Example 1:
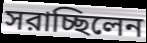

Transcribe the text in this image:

সরাচ্ছিলেন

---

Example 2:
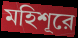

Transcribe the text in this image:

মহিশূরে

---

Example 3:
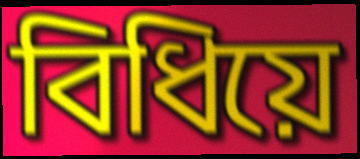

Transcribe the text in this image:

বিধিয়ে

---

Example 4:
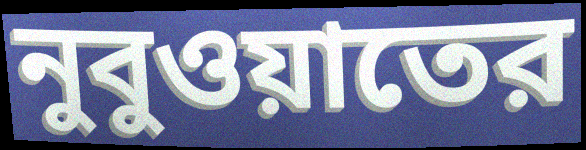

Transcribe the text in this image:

নুবুওয়াতের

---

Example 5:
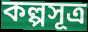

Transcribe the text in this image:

কল্পসূত্র